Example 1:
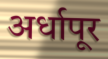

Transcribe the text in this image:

अर्धापूर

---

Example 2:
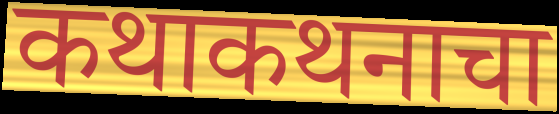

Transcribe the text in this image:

कथाकथनाचा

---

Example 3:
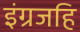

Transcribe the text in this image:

इंग्रजहि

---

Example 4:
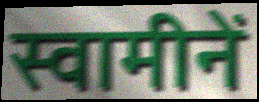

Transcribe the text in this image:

स्वामीनें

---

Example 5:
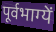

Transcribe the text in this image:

पूर्वभाग्यें